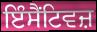
ਇੰਸੈਂਟਿਵਜ਼